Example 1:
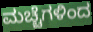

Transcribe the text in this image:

ಮಚ್ಚೆಗಳಿಂದ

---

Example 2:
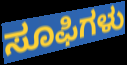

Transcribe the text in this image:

ಸೂಫಿಗಳು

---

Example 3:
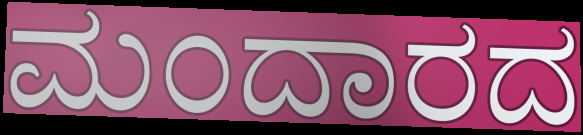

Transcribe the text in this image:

ಮಂದಾರದ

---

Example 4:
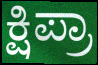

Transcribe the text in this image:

ಕ್ಷಿಪ್ರಾ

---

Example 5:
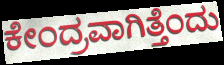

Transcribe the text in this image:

ಕೇಂದ್ರವಾಗಿತ್ತೆಂದು